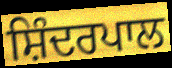
ਸ਼ਿੰਦਰਪਾਲ